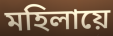
মহিলায়ে